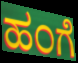
ಹಂಗೆ